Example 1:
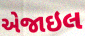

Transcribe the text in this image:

એજાઇલ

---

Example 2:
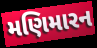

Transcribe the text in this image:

મણિમારન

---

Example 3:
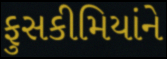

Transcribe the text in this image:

ફુસકીમિયાંને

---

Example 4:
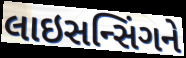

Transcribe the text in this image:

લાઇસન્સિંગને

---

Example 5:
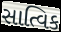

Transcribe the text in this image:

સાત્વિક